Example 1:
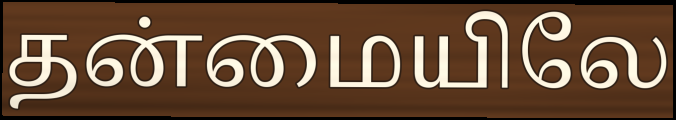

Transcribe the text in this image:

தன்மையிலே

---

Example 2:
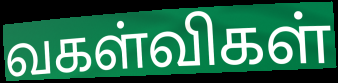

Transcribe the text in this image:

வகள்விகள்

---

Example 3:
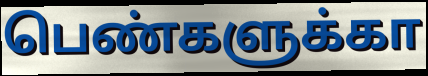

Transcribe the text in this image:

பெண்களுக்கா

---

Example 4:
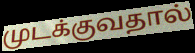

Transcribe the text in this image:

முடக்குவதால்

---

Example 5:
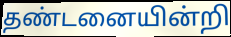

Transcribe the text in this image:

தண்டனையின்றி